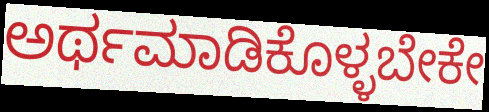
ಅರ್ಥಮಾಡಿಕೊಳ್ಳಬೇಕೇ